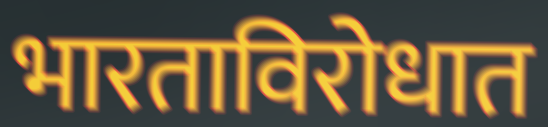
भारताविरोधात